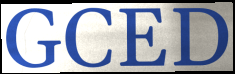
GCED